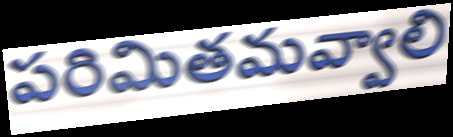
పరిమితమవ్వాలి